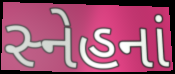
સ્નેહનાં